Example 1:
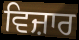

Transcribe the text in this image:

ਵਿਜ਼ਾਰ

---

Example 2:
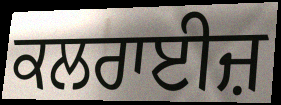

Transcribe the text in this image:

ਕਲਰਾਈਜ਼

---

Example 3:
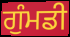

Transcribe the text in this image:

ਗੁੰਮਡੀ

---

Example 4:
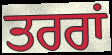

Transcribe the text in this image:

ਤਰਰਾਂ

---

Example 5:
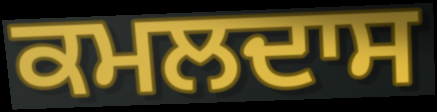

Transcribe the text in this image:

ਕਮਲਦਾਸ